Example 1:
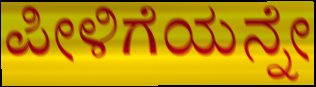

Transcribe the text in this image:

ಪೀಳಿಗೆಯನ್ನೇ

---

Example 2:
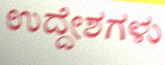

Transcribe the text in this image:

ಉದ್ದೇಶಗಳು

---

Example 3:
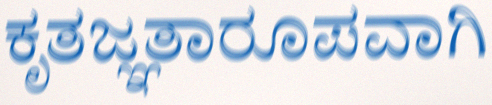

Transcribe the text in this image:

ಕೃತಜ್ಞತಾರೂಪವಾಗಿ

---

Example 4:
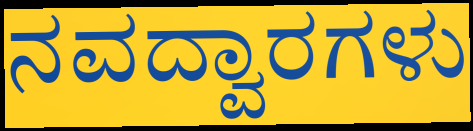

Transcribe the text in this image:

ನವದ್ವಾರಗಳು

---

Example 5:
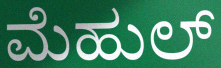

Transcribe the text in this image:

ಮೆಹುಲ್